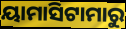
ୟାମାସିଟାମାରୁ